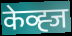
केव्ह्ज